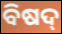
ବିଷଦ୍